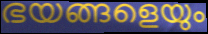
ഭയങ്ങളെയും